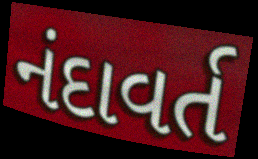
નંદાવર્ત